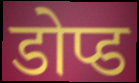
डोप्ड